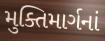
મુક્તિમાર્ગનાં